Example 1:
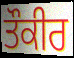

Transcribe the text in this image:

ਤੌਕੀਰ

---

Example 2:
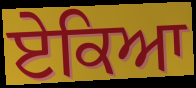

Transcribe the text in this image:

ਏਕਿਆ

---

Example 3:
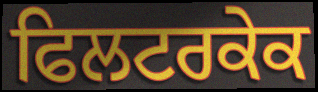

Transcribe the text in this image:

ਫਿਲਟਰਕੇਕ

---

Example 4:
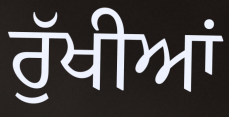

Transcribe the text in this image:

ਰੁੱਖੀਆਂ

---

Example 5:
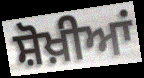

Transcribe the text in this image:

ਸ਼ੋਖ਼ੀਆਂ